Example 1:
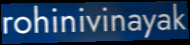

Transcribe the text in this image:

rohinivinayak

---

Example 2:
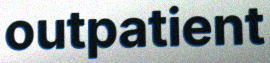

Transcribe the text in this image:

outpatient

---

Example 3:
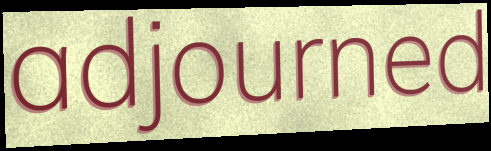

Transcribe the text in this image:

adjourned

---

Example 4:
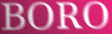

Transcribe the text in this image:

BORO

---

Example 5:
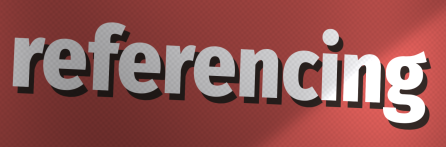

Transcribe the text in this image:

referencing